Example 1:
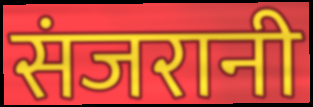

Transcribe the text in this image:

संजरानी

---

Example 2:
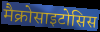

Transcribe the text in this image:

मैक्रोसाइटोसिस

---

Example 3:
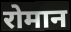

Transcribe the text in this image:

रोमान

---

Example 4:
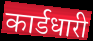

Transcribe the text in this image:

कार्डधारी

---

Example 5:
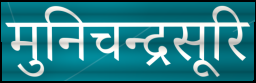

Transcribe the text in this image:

मुनिचन्द्रसूरि